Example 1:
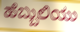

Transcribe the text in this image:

ಹೆಬ್ಬುಲಿಯು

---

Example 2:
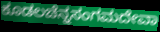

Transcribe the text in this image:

ಕೂಡಲಚೆನ್ನಸಂಗಮದೇವಾ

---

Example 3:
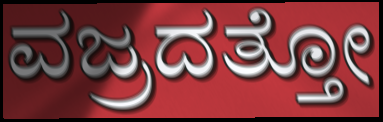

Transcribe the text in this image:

ವಜ್ರದತ್ತೋ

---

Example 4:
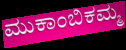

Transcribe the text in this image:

ಮುಕಾಂಬಿಕಮ್ಮ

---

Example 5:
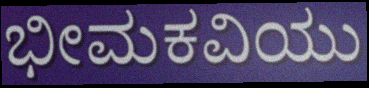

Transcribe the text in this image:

ಭೀಮಕವಿಯು